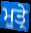
ਮੂਤ੍ਰੇ